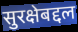
सुरक्षेबद्दल